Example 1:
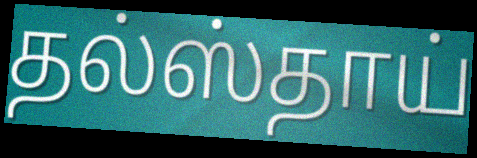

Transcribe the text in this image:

தல்ஸ்தாய்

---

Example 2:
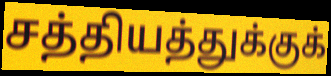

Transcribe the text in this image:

சத்தியத்துக்குக்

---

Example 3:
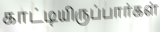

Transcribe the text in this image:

காட்டியிருப்பார்கள்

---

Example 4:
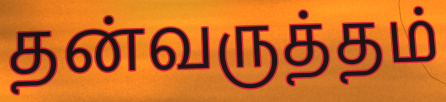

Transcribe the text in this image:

தன்வருத்தம்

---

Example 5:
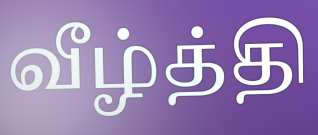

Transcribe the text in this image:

வீழ்த்தி